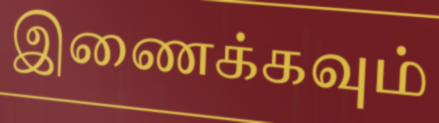
இணைக்கவும்